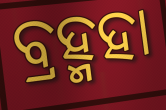
ବ୍ରହ୍ମହା